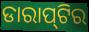
ଡାରାପ୍‌ଟିର